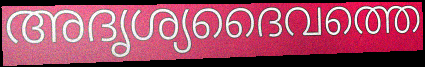
അദൃശ്യദൈവത്തെ